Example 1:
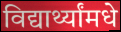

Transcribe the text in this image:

विद्यार्थ्यांमधे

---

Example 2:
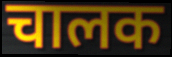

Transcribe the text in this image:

चालक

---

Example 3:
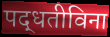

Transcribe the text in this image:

पद्धतीविना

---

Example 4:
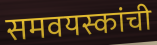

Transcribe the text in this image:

समवयस्कांची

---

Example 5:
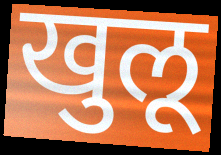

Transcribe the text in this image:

खुलू